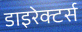
डाइरेक्टर्स